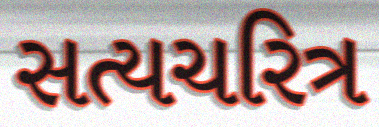
સત્યચરિત્ર